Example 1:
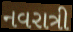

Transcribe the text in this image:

નવરાત્રી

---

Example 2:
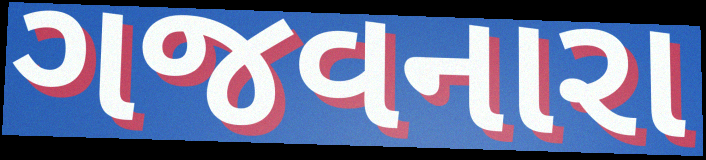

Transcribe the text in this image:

ગજવનારા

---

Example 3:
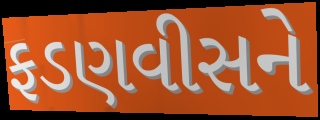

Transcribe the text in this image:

ફડણવીસને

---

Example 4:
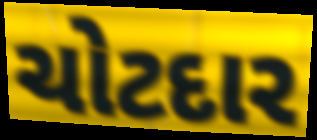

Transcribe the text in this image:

ચોટદાર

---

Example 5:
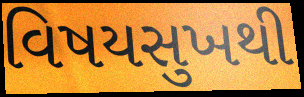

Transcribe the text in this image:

વિષયસુખથી